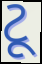
ટૂ